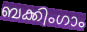
ബക്കിംഗാം